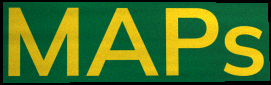
MAPs